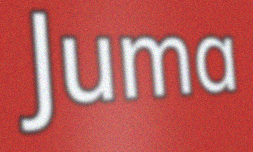
Juma